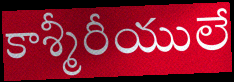
కాశ్మీరీయులే